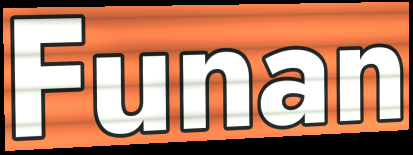
Funan